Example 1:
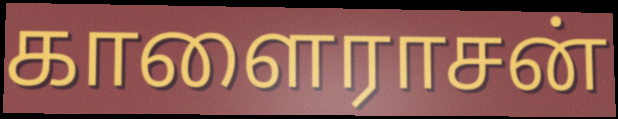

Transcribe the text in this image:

காளைராசன்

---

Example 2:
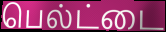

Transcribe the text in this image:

பெல்ட்டை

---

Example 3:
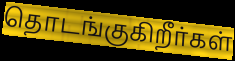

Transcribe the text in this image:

தொடங்குகிறீர்கள்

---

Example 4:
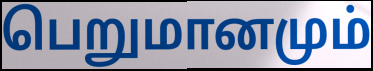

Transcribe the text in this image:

பெறுமானமும்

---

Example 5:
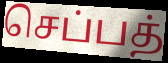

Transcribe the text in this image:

செப்பத்